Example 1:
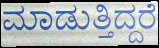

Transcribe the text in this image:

ಮಾಡುತ್ತಿದ್ದರೆ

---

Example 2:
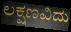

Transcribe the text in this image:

ಲಕ್ಷಣವಿದು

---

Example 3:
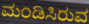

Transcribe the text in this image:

ಮಂಡಿಸಿರುವ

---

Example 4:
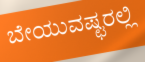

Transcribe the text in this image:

ಬೇಯುವಷ್ಟರಲ್ಲಿ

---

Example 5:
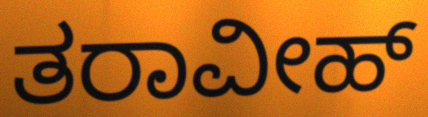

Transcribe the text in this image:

ತರಾವೀಹ್